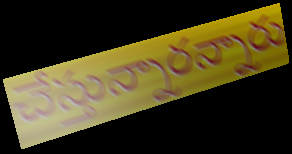
చేస్తున్నారన్నారు